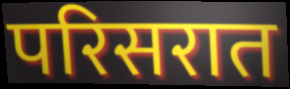
परिसरात